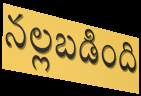
నల్లబడింది